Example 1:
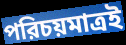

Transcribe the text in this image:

পরিচয়মাত্রই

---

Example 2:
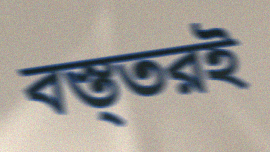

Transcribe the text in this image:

বস্ত্তরই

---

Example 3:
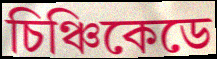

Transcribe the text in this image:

চিঞ্চিকেডে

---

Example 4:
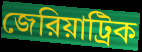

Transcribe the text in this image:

জেরিয়াট্রিক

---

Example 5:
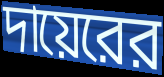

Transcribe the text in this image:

দায়েরের